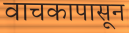
वाचकापासून